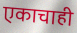
एकाचाही